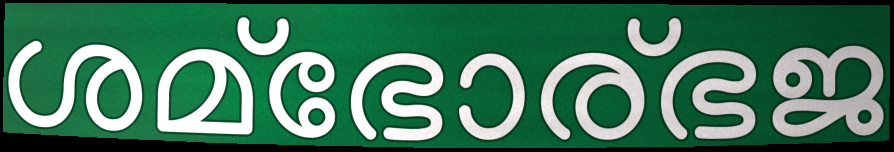
ശമ്ഭോര്ഭജ